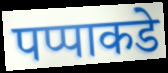
पप्पाकडे